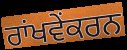
ਰਾਂਖਵੇਂਕਰਨ